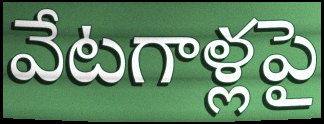
వేటగాళ్లపై